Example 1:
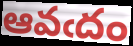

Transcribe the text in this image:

ఆవఁదం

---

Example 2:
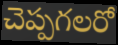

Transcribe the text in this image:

చెప్పగలరో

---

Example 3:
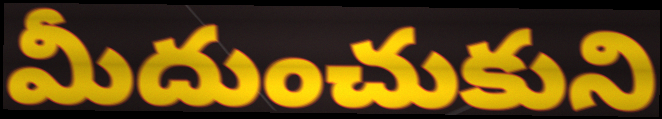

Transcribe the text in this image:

మీదుంచుకుని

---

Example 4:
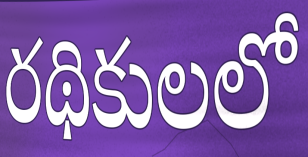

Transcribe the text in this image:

రథికులలో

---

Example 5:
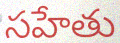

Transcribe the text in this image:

సహేతు